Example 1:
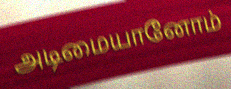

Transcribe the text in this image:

அடிமையானோம்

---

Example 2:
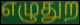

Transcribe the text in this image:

எழுதுற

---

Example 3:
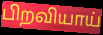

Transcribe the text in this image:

பிறவியாய்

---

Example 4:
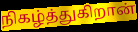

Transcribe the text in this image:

நிகழ்த்துகிறான்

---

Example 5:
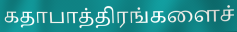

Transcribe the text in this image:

கதாபாத்திரங்களைச்